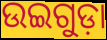
ଉଇଗୁଡ଼ା